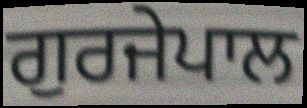
ਗੁਰਜੇਪਾਲ